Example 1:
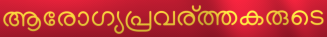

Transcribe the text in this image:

ആരോഗ്യപ്രവര്ത്തകരുടെ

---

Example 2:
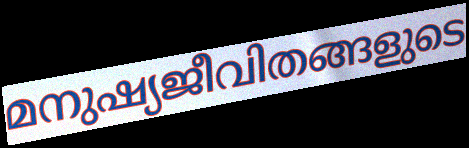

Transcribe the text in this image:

മനുഷ്യജീവിതങ്ങളുടെ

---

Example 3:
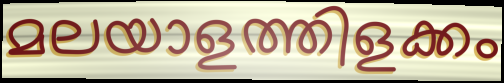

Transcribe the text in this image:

മലയാളത്തിളക്കം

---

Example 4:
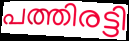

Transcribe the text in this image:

പത്തിരട്ടി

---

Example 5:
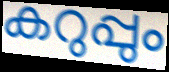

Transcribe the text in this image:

കറുപ്പും